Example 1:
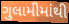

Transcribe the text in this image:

ગુલામીમાંથી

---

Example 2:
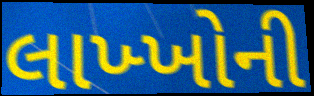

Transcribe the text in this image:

લાખ્ખોની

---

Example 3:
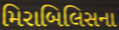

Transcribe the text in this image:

મિરાબિલિસના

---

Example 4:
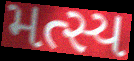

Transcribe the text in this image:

મત્સ્ય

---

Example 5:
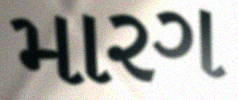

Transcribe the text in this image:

મારગ